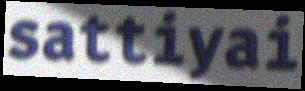
sattiyai